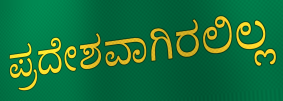
ಪ್ರದೇಶವಾಗಿರಲಿಲ್ಲ